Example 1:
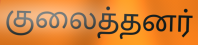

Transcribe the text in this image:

குலைத்தனர்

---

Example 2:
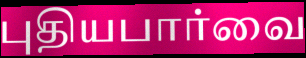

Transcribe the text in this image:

புதியபார்வை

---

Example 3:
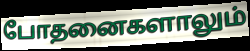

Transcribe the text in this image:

போதனைகளாலும்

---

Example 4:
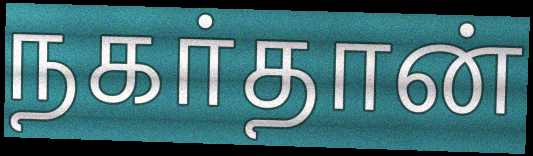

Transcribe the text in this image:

நகர்தான்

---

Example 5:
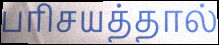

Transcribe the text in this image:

பரிசயத்தால்